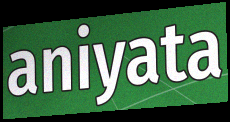
aniyata